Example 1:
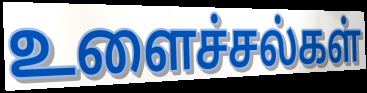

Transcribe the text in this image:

உளைச்சல்கள்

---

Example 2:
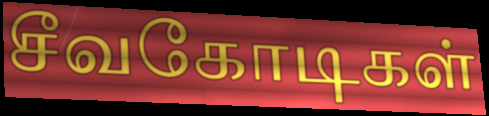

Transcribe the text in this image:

சீவகோடிகள்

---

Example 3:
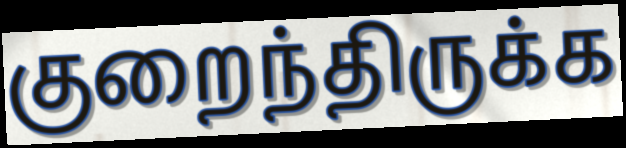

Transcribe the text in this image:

குறைந்திருக்க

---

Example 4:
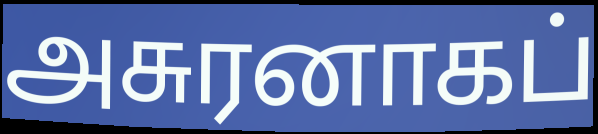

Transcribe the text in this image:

அசுரனாகப்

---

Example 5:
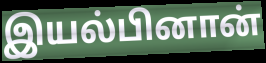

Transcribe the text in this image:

இயல்பினான்